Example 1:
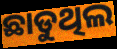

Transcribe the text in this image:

ଛାଡୁଥିଲ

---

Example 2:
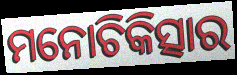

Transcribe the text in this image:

ମନୋଚିକିତ୍ସାର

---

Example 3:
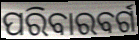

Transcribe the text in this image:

ପରିବାରବର୍ଗ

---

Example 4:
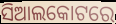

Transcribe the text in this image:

ସିଆଲକୋଟରେ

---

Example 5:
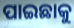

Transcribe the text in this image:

ପାଇଛାକୁ